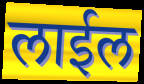
लाईल